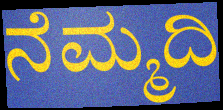
ನೆಮ್ಮದಿ